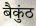
बैकुंठ